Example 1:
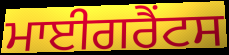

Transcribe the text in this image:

ਮਾਈਗਰੈਂਟਸ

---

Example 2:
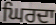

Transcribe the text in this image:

ਘਿਰਦਾ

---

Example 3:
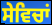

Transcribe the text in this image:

ਸੇਵਿਚਾਂ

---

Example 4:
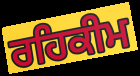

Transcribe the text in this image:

ਰਹਿਕੀਮ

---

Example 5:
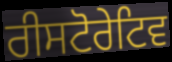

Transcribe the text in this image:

ਰੀਸਟੋਰੇਟਿਵ